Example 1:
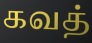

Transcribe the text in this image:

கவத்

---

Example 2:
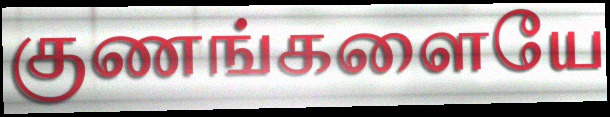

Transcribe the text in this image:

குணங்களையே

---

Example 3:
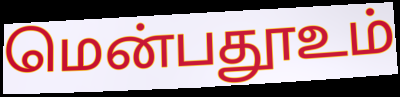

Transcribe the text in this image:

மென்பதூஉம்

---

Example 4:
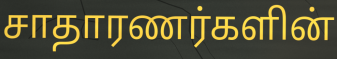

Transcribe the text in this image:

சாதாரணர்களின்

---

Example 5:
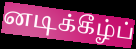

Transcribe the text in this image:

னடிக்கீழ்ப்